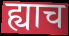
ह्याच